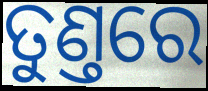
ତୁଣ୍ତରେ